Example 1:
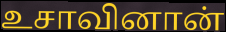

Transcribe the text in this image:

உசாவினான்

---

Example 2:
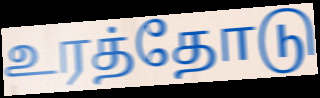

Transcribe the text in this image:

உரத்தோடு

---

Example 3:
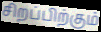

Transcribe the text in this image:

சிறப்பிற்கும்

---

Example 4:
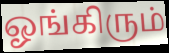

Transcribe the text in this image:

ஓங்கிரும்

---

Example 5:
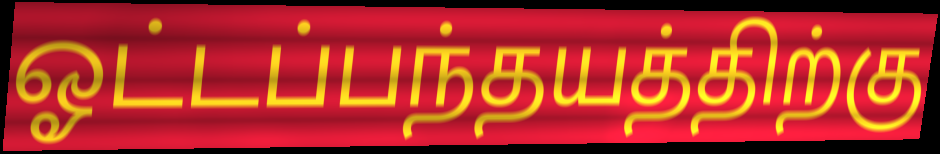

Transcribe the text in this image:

ஓட்டப்பந்தயத்திற்கு